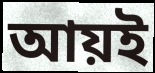
আয়ই